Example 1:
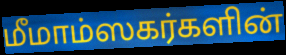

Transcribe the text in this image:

மீமாம்ஸகர்களின்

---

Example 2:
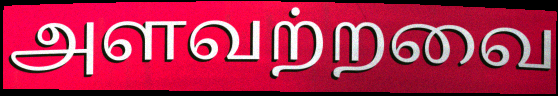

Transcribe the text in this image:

அளவற்றவை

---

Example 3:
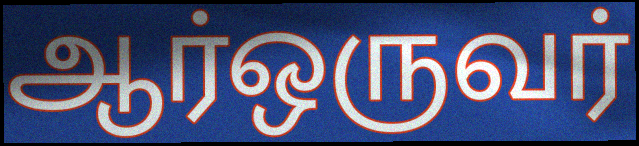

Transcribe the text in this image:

ஆர்ஒருவர்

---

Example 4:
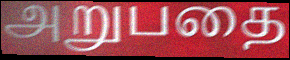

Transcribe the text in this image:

அறுபதை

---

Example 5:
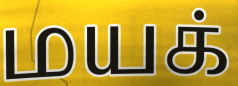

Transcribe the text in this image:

மயக்